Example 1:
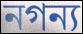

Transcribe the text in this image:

নগন্য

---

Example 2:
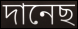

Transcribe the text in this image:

দানেছ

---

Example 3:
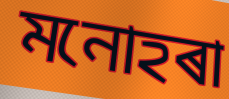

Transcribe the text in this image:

মনোহৰা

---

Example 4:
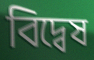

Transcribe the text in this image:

বিদ্বেষ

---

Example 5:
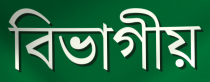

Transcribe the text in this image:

বিভাগীয়